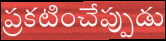
ప్రకటించేప్పుడు